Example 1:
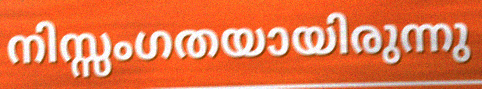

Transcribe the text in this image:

നിസ്സംഗതയായിരുന്നു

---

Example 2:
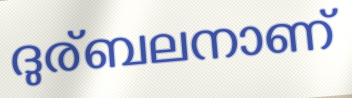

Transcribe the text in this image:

ദുര്ബലനാണ്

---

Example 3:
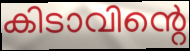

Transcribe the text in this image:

കിടാവിന്റെ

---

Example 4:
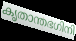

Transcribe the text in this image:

കൃതാന്തഭഗിനി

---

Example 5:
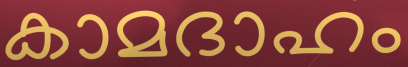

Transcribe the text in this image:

കാമദാഹം